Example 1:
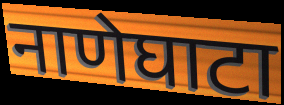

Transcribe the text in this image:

नाणेघाटा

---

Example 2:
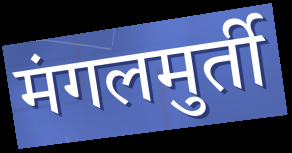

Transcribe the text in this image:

मंगलमुर्ती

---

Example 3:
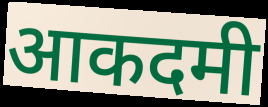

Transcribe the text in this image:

आकदमी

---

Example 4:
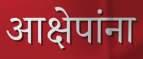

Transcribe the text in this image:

आक्षेपांना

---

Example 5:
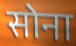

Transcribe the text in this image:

सोना